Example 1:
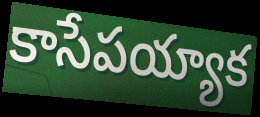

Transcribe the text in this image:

కాసేపయ్యాక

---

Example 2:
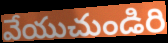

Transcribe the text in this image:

వేయుచుండిరి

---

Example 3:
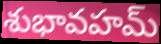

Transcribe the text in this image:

శుభావహమ్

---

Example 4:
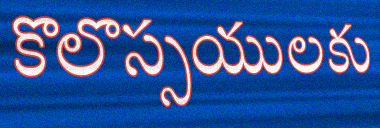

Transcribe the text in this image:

కొలొస్సయులకు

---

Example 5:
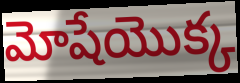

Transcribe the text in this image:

మోషేయొక్క